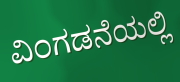
ವಿಂಗಡನೆಯಲ್ಲಿ